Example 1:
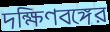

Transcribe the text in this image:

দক্ষিণবঙ্গের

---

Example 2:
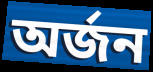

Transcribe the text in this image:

অর্জন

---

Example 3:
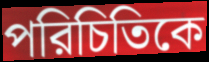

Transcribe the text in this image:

পরিচিতিকে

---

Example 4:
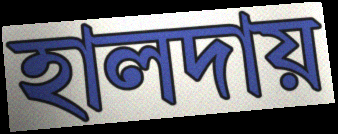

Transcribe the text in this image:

হালদায়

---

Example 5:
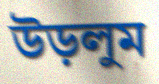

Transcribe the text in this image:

উড়লুম